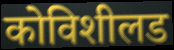
कोविशीलड